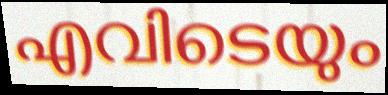
എവിടെയും